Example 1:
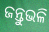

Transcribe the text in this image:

ଜନ୍ତୁଭଳି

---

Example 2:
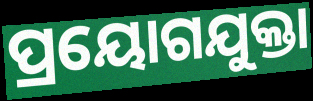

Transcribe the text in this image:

ପ୍ରୟୋଗଯୁକ୍ତା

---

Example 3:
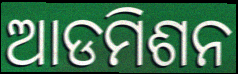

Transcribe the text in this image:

ଆଡମିଶନ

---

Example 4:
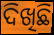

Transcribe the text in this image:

ଦିଖିଛି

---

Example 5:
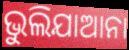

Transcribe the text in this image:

ଭୁଲିଯାଆନା